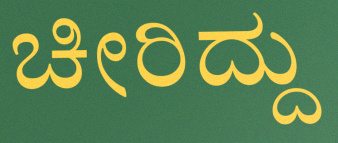
ಚೀರಿದ್ದು